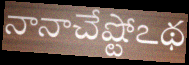
నానాచేష్టోఽథ